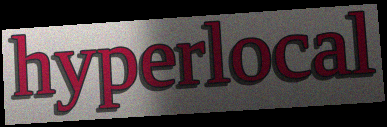
hyperlocal